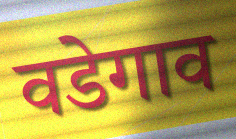
वडेगाव